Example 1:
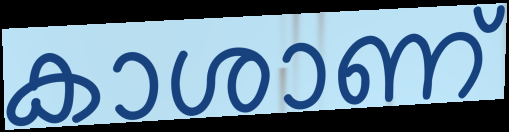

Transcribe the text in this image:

കാശാണ്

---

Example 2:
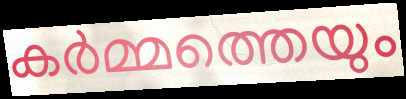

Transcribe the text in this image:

കർമ്മത്തെയും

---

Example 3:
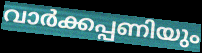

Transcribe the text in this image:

വാർക്കപ്പണിയും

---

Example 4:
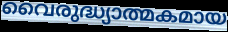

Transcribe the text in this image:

വൈരുദ്ധ്യാത്മകമായ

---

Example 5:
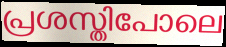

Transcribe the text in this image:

പ്രശസ്തിപോലെ